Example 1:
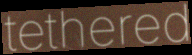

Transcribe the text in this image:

tethered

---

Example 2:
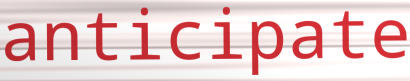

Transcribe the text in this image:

anticipate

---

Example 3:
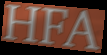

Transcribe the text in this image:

HFA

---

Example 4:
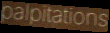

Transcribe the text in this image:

palpitations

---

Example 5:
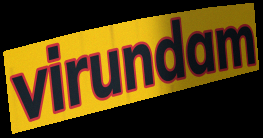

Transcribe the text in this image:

virundam